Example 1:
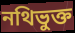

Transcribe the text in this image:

নথিভুক্ত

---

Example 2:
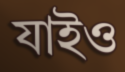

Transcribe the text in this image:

যাইও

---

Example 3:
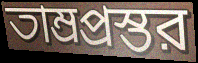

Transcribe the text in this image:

তাম্রপ্রস্তর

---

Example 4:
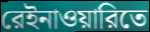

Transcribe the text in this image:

রেইনাওয়ারিতে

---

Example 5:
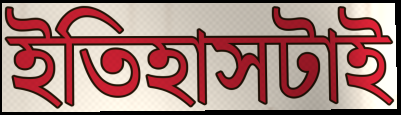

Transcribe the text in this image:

ইতিহাসটাই